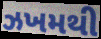
ઝખમથી